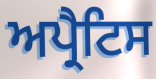
ਅਪ੍ਰੈਟਿਸ